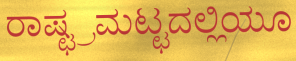
ರಾಷ್ಟ್ರಮಟ್ಟದಲ್ಲಿಯೂ